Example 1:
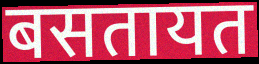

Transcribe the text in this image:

बसतायत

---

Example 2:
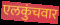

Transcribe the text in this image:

एलकुंचवार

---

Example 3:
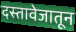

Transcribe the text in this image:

दस्तावेजातून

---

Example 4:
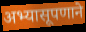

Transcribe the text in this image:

अभ्यासूपणाने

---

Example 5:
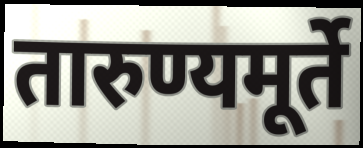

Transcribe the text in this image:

तारुण्यमूर्ते